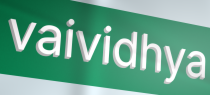
vaividhya